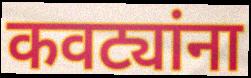
कवट्यांना